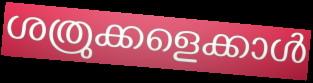
ശത്രുക്കളെക്കാൾ